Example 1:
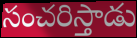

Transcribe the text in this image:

సంచరిస్తాడు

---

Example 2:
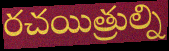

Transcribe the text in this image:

రచయిత్రుల్ని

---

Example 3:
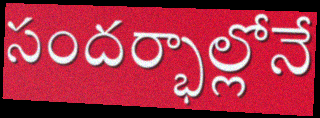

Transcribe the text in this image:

సందర్భాల్లోనే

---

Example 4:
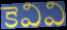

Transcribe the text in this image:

కెవివి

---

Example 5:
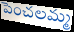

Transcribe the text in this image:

పెంచలమ్మ